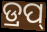
ଡ୍ରପ୍